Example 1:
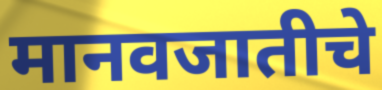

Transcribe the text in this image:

मानवजातीचे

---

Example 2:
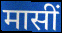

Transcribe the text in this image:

मासीं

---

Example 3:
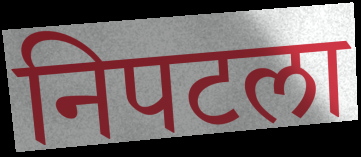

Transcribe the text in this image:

निपटला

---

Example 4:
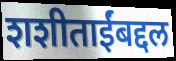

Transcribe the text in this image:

शशीताईंबद्दल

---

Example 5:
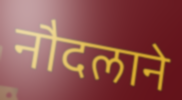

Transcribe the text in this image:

नौदलाने